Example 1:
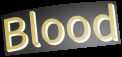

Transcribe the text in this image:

Blood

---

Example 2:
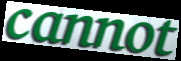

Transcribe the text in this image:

cannot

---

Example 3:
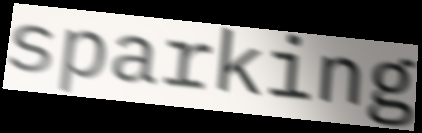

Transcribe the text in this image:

sparking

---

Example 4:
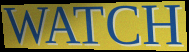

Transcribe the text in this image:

WATCH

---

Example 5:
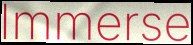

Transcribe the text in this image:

Immerse